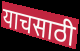
याचसाठी